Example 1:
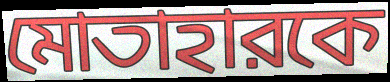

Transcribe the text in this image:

মোতাহারকে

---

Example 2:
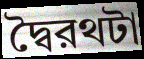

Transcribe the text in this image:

দ্বৈরথটা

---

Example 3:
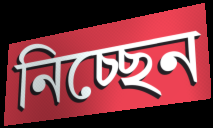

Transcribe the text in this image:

নিচ্ছেন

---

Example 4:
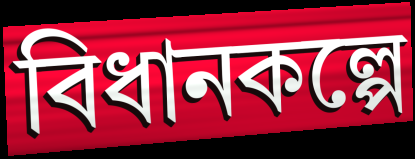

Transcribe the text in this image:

বিধানকল্পে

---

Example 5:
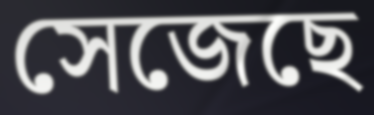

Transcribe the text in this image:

সেজেছে